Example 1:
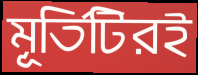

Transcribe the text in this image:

মূর্তিটিরই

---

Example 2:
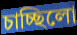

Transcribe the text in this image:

চাচ্ছিলো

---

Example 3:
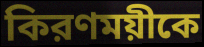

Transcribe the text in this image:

কিরণময়ীকে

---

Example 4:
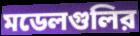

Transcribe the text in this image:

মডেলগুলির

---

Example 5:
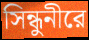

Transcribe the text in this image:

সিন্ধুনীরে